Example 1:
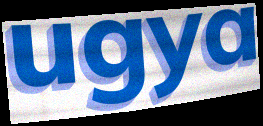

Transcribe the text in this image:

ugya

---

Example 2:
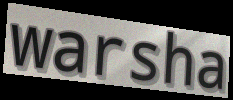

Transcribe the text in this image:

warsha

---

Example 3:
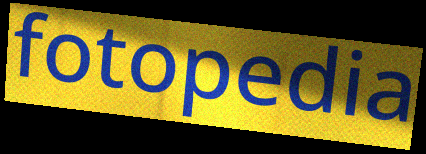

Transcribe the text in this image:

fotopedia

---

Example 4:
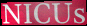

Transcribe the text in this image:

NICUs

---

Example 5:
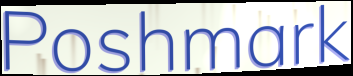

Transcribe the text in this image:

Poshmark